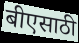
बीएसाठी